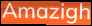
Amazigh